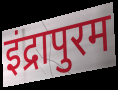
इंद्रापुरम